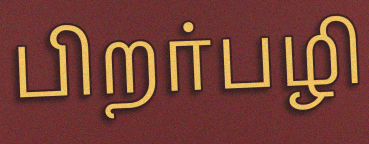
பிறர்பழி